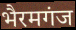
भैरमगंज